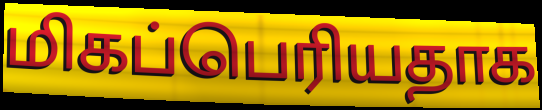
மிகப்பெரியதாக